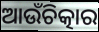
ଆଉଁଚିତ୍କାର